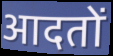
आदतों